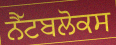
ਨੈੱਟਬਲੋਕਸ